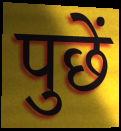
पुछें